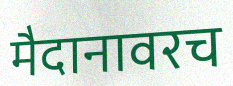
मैदानावरच